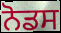
ਨੋਡਸ